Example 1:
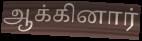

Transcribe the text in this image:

ஆக்கினார்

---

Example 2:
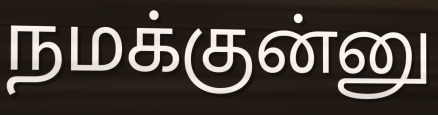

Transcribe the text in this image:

நமக்குன்னு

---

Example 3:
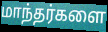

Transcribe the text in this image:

மாந்தர்களை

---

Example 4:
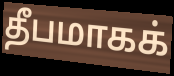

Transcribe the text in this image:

தீபமாகக்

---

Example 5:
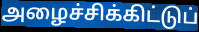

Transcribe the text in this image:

அழைச்சிக்கிட்டுப்